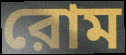
রোম